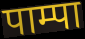
पाम्पा